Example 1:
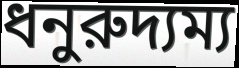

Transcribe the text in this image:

ধনুরুদ্যম্য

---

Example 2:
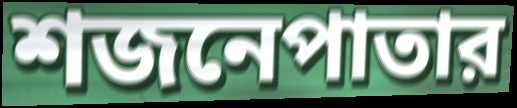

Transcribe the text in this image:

শজনেপাতার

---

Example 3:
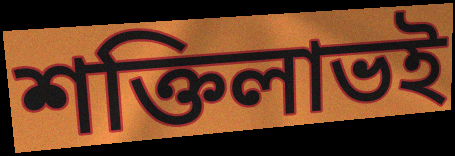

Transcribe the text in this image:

শক্তিলাভই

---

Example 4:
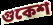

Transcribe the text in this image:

গুকেশ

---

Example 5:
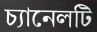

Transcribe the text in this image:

চ্যানেলটি